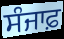
ਸੰਜਾਫ਼